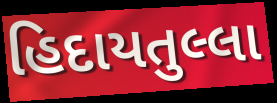
હિદાયતુલ્લા